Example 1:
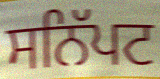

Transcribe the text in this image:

ਸਨਿੱਪਟ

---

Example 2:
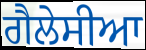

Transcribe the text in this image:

ਗੈਲੇਸੀਆ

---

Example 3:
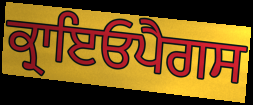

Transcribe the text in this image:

ਕ੍ਰਾਇਓਪੈਗਸ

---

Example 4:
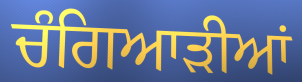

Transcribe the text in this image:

ਚੰਗਿਆੜੀਆਂ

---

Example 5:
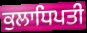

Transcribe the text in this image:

ਕੁਲਾਧਿਪਤੀ